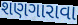
શણગારાવા